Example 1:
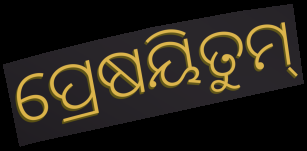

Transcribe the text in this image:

ପ୍ରେଷୟିତୁମ୍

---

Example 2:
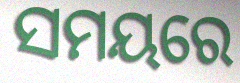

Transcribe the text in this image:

ସମୟରେ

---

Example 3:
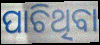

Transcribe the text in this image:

ପାଚିଥିବା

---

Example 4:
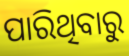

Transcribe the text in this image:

ପାରିଥିବାରୁ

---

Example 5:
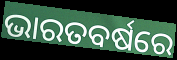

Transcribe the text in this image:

ଭାରତବର୍ଷରେ